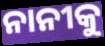
ନାନୀକୁ